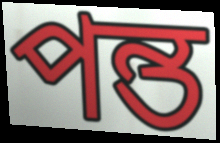
পন্ত